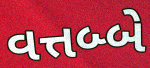
વત્તબ્બે